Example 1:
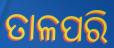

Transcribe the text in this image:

ତାଳପରି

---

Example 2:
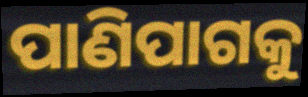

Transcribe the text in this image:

ପାଣିପାଗକୁ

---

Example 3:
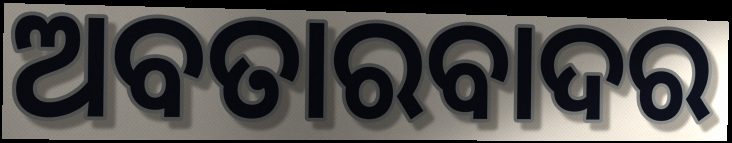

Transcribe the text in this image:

ଅବତାରବାଦର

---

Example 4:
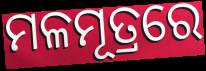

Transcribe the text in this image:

ମଳମୂତ୍ରରେ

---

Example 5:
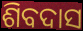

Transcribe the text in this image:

ଶିବଦାସ